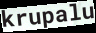
krupalu